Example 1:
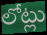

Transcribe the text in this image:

లోట్లు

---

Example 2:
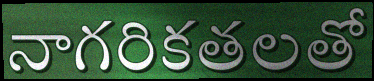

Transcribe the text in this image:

నాగరికతలతో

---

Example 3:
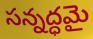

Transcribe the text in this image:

సన్నద్ధమై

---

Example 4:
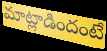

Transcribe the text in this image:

మాట్లాడిందంటే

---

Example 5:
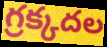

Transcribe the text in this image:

గ్రక్కదల